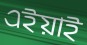
এইয়াই